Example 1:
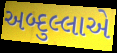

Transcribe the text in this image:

અબ્દુલ્લાએ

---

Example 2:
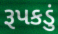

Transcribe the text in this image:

રૂપકડું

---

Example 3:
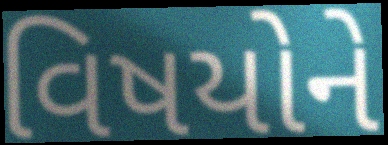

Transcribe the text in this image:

વિષયોને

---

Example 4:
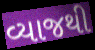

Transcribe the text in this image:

વ્યાજથી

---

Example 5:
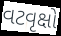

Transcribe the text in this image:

વટવૃક્ષો